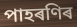
পাহৰণিৰ